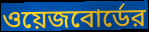
ওয়েজবোর্ডের